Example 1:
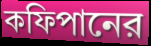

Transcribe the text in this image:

কফিপানের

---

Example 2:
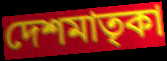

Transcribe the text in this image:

দেশমাতৃকা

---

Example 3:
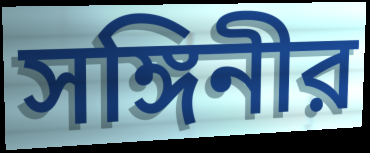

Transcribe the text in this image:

সঙ্গিনীর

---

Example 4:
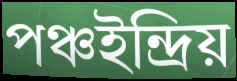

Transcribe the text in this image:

পঞ্চইন্দ্রিয়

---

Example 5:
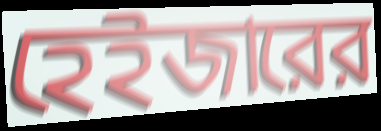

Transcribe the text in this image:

হেইজারের